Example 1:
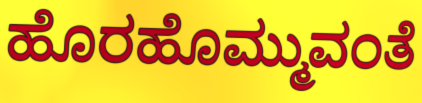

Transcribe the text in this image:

ಹೊರಹೊಮ್ಮುವಂತೆ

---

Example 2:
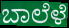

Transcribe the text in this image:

ಬಾಲೆಳೆ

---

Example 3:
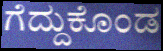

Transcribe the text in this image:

ಗೆದ್ದುಕೊಂಡ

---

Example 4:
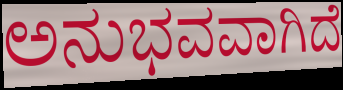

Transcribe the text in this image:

ಅನುಭವವಾಗಿದೆ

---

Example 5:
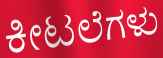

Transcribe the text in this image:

ಕೀಟಲೆಗಳು